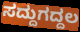
ಸದ್ದುಗದ್ದಲ